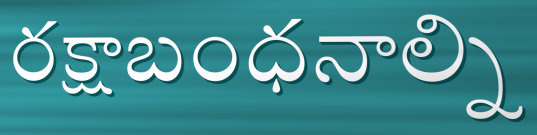
రక్షాబంధనాల్ని